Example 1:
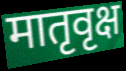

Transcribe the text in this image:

मातृवृक्ष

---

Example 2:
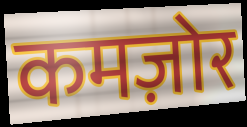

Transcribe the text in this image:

कमज़ोर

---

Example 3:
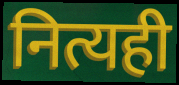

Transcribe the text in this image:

नित्यही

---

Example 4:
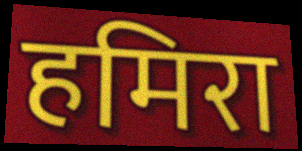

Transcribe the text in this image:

हमिरा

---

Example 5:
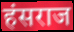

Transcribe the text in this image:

हंसराज